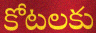
కోటలకు